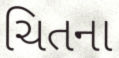
ચિતના